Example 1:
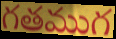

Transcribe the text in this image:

గతముగ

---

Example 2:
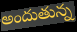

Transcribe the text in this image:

అందుతున్న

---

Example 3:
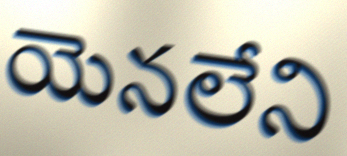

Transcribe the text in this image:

యెనలేని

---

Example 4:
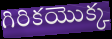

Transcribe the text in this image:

గిరికయొక్క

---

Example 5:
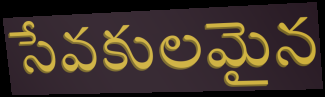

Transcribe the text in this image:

సేవకులమైన